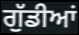
ਗੁੱਡੀਆਂ